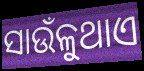
ସାଉଁଳୁଥାଏ